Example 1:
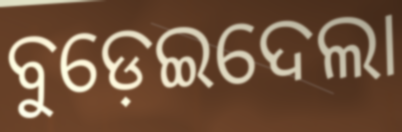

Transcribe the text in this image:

ବୁଡ଼େଇଦେଲା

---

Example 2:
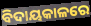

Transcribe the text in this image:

ବିଦାୟକାଳରେ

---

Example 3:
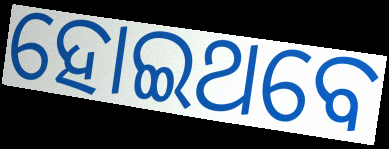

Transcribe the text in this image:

ହୋଇଥବେ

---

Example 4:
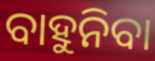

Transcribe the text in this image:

ବାହୁନିବା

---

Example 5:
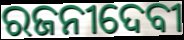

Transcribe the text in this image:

ରଜନୀଦେବୀ